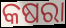
କଷରା